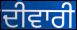
ਦੀਵਾਰੀ